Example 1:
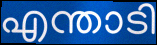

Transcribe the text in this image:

എന്താടി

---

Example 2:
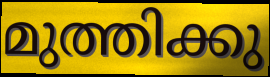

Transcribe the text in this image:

മുത്തിക്കു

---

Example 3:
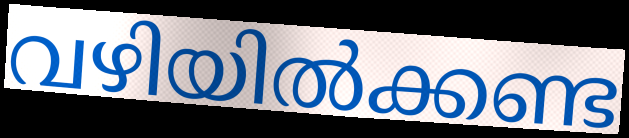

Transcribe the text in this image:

വഴിയിൽക്കണ്ട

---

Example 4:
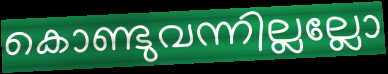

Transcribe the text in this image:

കൊണ്ടുവന്നില്ലല്ലോ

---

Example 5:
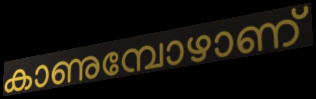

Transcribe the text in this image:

കാണുമ്പോഴാണ്